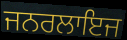
ਜਨਰਲਾਇਜ